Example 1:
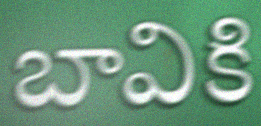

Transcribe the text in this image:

బావికి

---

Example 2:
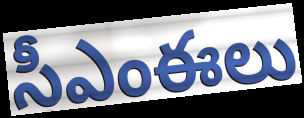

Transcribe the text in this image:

సీఎంఈలు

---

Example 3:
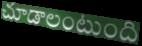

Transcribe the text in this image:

చూడాలంటుంది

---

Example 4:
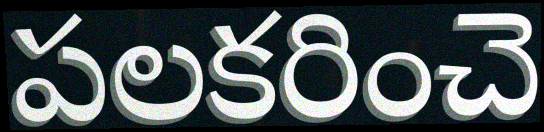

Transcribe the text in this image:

పలకరించె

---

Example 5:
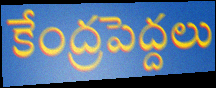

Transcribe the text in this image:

కేంద్రపెద్దలు